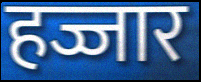
हज्जार